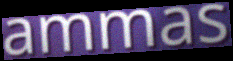
ammas